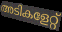
അടികളേറ്റ്